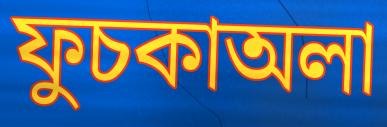
ফুচকাঅলা